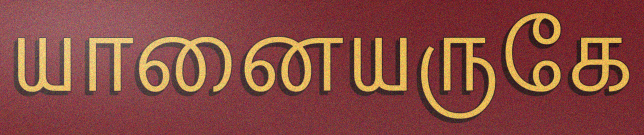
யானையருகே